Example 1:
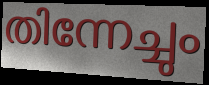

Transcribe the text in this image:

തിന്നേച്ചും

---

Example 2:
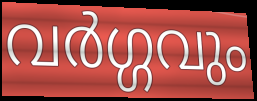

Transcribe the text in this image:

വർഗ്ഗവും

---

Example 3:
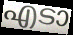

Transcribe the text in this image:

എടാ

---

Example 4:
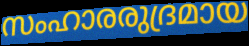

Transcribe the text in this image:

സംഹാരരുദ്രമായ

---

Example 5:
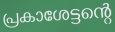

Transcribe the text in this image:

പ്രകാശേട്ടന്റെ